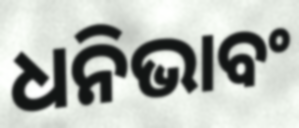
ଧନିଭାବଂ